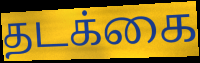
தடக்கை